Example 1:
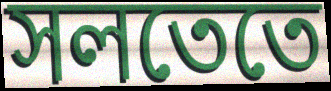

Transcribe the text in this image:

সলতেতে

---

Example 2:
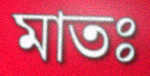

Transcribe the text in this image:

মাতঃ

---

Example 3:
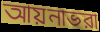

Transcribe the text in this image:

আয়নাভরা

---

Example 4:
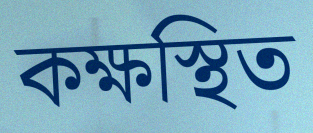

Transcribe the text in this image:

কক্ষস্থিত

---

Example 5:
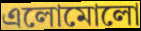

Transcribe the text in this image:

এলোমোলো